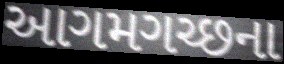
આગમગચ્છના